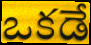
ఒకడే